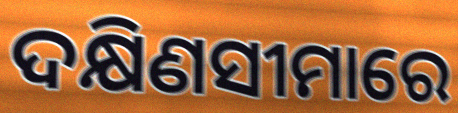
ଦକ୍ଷିଣସୀମାରେ